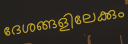
ദേശങ്ങളിലേക്കും